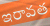
ఇరావత